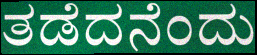
ತಡೆದನೆಂದು